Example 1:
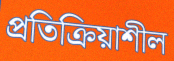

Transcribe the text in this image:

প্রতিক্রিয়াশীল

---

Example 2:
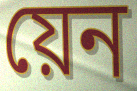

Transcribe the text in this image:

য়েন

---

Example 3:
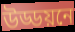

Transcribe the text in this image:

উড্ডয়নে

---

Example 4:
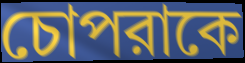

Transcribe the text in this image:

চোপরাকে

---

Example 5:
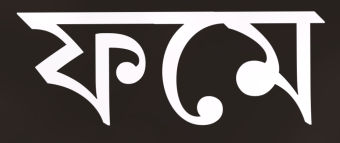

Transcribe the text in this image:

ফমে